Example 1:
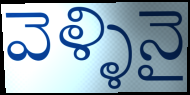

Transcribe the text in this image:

వెళ్ళినై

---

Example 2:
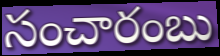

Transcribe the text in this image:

సంచారంబు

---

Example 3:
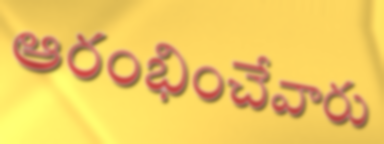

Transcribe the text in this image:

ఆరంభించేవారు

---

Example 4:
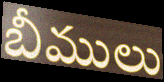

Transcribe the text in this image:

బీములు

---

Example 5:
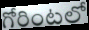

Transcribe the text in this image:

గోరింటలో